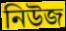
নিউজ